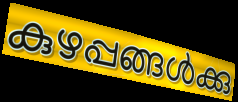
കുഴപ്പങ്ങൾക്കു